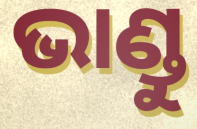
ଭାଣ୍ଡୁ